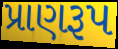
પ્રાણરૂપ